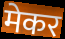
मेकर